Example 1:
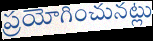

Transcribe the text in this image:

ప్రయోగించునట్లు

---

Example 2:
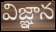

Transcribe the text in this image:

విజ్ఞాన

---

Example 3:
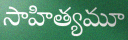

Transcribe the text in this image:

సాహిత్యమూ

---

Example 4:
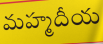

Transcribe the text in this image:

మహ్మదీయ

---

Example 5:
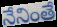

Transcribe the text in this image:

నేనింతే